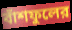
বাঁশফুলের